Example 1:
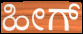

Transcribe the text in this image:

ಹೀಗ್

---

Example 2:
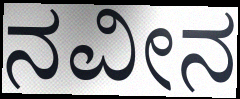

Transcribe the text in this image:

ನವೀನ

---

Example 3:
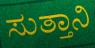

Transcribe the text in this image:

ಸುತ್ತಾನಿ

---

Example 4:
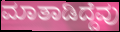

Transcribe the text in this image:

ಮಾತಾಡಿದ್ದೆವು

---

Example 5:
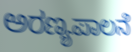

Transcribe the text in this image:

ಅರಣ್ಯಪಾಲನೆ